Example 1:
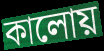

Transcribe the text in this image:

কালোয়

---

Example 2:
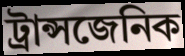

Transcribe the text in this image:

ট্রান্সজেনিক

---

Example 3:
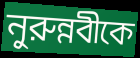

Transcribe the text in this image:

নুরুন্নবীকে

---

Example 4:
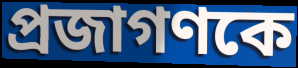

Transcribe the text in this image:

প্রজাগণকে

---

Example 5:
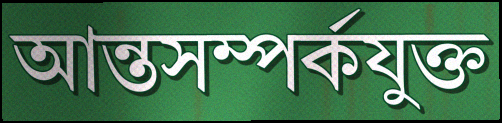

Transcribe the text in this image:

আন্তসম্পর্কযুক্ত